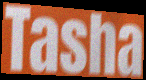
Tasha